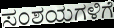
ಸಂಶಯಗಳಿಗೆ